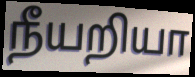
நீயறியா